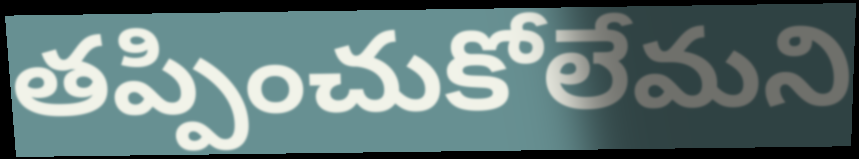
తప్పించుకోలేమని